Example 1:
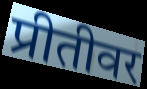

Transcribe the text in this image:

प्रीतीवर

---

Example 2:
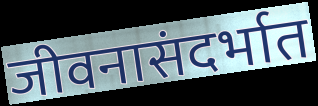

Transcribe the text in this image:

जीवनासंदर्भात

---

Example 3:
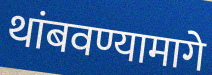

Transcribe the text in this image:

थांबवण्यामागे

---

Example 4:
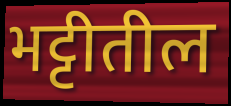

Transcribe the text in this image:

भट्टीतील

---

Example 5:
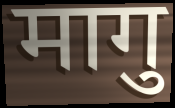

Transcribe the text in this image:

मागु